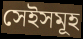
সেইসমূহ